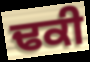
ਢਕੀ